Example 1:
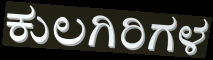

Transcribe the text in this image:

ಕುಲಗಿರಿಗಳ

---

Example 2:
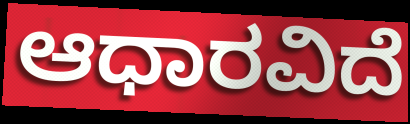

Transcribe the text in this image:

ಆಧಾರವಿದೆ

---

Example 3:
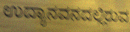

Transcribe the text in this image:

ಉದ್ಯಾನವನದಲ್ಲಿರುವ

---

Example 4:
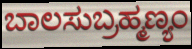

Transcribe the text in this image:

ಬಾಲಸುಬ್ರಹ್ಮಣ್ಯಂ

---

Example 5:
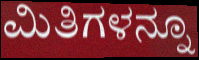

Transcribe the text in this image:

ಮಿತಿಗಳನ್ನೂ